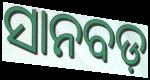
ସାନବଡ଼